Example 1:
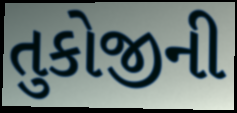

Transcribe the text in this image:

તુકોજીની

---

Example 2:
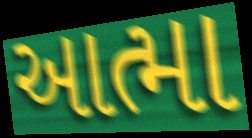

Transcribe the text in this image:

આત્મા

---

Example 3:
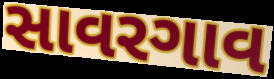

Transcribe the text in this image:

સાવરગાવ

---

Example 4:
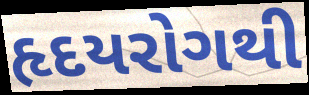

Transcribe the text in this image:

હૃદયરોગથી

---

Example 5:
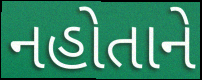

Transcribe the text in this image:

નહોતાને